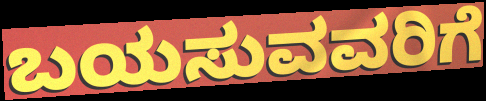
ಬಯಸುವವರಿಗೆ